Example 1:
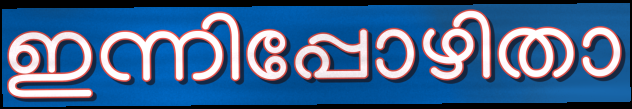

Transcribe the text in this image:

ഇന്നിപ്പോഴിതാ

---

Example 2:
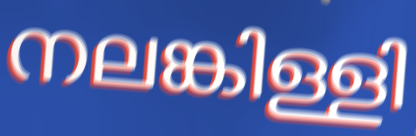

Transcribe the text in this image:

നലങ്കിള്ളി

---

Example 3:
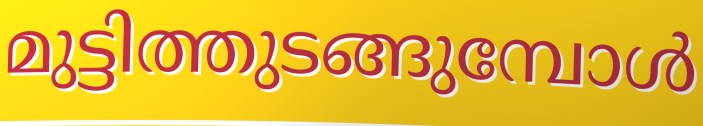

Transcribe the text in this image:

മുട്ടിത്തുടങ്ങുമ്പോൾ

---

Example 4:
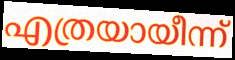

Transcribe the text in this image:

എത്രയായീന്ന്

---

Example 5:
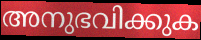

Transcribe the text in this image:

അനുഭവിക്കുക